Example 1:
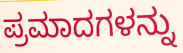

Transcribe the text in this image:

ಪ್ರಮಾದಗಳನ್ನು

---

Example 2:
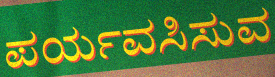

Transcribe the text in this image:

ಪರ್ಯವಸಿಸುವ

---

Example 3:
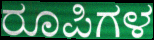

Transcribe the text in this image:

ರೂಪಿಗಳ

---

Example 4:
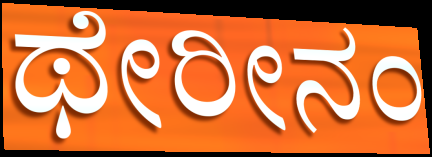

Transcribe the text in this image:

ಥೇರೀನಂ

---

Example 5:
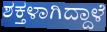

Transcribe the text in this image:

ಶಕ್ತಳಾಗಿದ್ದಾಳೆ